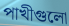
পাখীগুলো